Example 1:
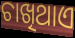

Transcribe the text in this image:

ଚାଖିଥାଏ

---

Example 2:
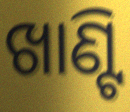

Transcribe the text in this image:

ଖାଣ୍ଟି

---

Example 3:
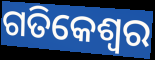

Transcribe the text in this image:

ଗତିକେଶ୍ବର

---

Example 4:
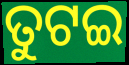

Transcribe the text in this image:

ତୁଟଇ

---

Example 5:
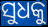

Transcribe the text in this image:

ସୁଧକୁ